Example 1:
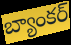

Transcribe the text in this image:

బ్యాంకర్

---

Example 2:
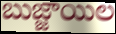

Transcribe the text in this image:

బుజ్జాయిల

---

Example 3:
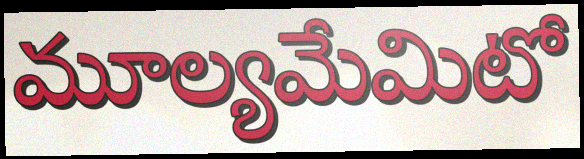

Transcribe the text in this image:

మూల్యమేమిటో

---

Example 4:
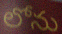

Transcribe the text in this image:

లోను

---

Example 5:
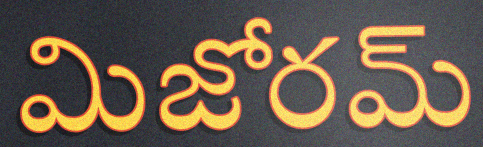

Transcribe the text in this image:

మిజోరమ్